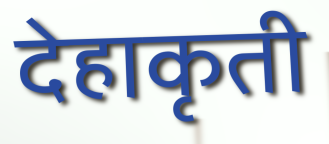
देहाकृती